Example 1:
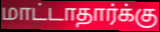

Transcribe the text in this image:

மாட்டாதார்க்கு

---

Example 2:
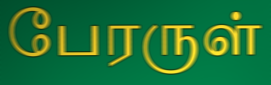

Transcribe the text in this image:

பேரருள்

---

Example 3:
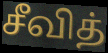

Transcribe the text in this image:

சீவித்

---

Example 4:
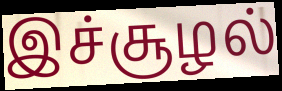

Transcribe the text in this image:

இச்சூழல்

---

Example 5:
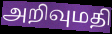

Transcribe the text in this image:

அறிவுமதி